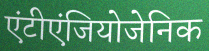
एंटीएंजियोजेनिक